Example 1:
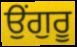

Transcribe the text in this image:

ਉਂਗੁਰੂ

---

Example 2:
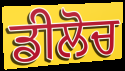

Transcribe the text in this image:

ਡੀਲੋਚ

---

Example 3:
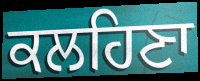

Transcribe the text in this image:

ਕਲਹਿਣਾ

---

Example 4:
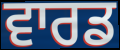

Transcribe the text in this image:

ਵਾਰਡ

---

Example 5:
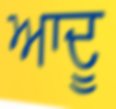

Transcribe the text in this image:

ਆਦੂ